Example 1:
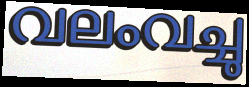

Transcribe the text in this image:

വലംവച്ചു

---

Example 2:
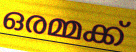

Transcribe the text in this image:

ഒരമ്മക്ക്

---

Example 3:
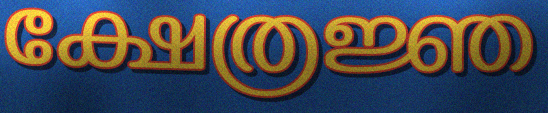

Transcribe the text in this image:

ക്ഷേത്രജ്ഞ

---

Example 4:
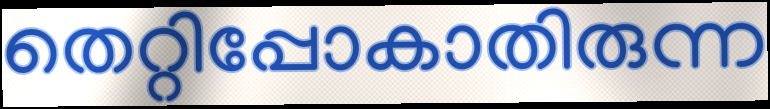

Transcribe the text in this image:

തെറ്റിപ്പോകാതിരുന്ന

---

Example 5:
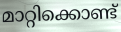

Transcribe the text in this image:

മാറ്റിക്കൊണ്ട്